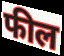
फील